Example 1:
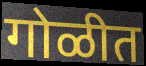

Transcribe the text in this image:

गोळीत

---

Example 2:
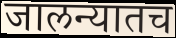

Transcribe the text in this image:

जालन्यातच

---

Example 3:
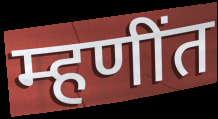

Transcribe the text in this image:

म्हणींत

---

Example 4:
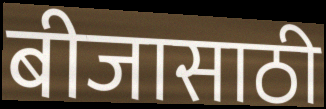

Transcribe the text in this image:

बीजासाठी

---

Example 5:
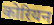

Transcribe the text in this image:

कोरियन